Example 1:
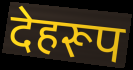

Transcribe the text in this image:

देहरूप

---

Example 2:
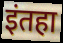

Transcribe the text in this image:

इंतहा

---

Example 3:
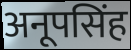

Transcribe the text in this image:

अनूपसिंह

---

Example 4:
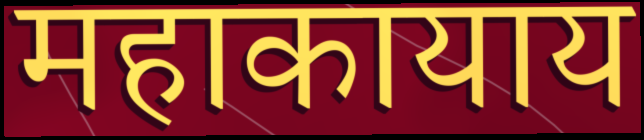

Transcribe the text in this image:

महाकायाय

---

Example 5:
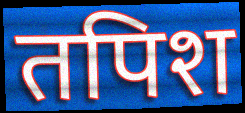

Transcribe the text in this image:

तपिश